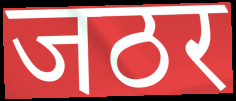
जठर